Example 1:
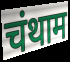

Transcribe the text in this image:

चंथाम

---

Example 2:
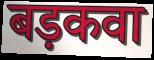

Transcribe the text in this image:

बड़कवा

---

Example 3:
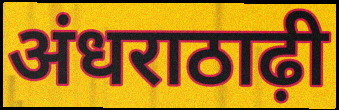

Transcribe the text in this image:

अंधराठाढ़ी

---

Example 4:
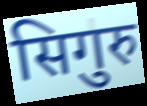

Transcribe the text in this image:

सिगुरु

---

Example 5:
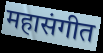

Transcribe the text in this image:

महासंगीत